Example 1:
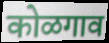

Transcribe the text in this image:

कोळगाव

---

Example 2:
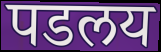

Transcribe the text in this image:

पडलय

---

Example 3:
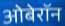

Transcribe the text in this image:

ओबेरॉन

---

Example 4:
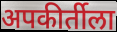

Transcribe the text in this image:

अपकीर्तीला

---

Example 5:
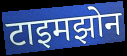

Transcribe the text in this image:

टाइमझोन